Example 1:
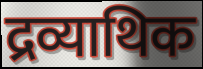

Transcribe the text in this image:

द्रव्याथिक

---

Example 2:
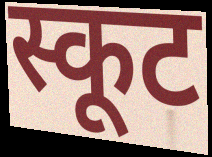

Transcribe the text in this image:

स्कूट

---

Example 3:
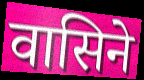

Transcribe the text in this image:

वासिने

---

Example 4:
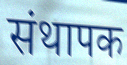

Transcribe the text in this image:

संथापक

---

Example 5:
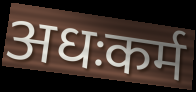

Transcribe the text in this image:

अधःकर्म